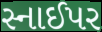
સ્નાઈપર